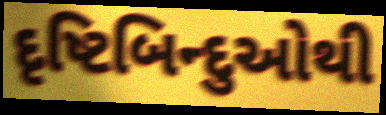
દૃષ્ટિબિન્દુઓથી